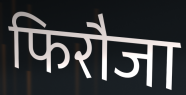
फिरौजा